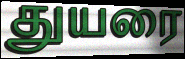
துயரை